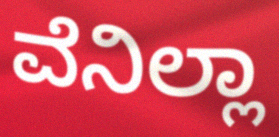
ವೆನಿಲ್ಲಾ